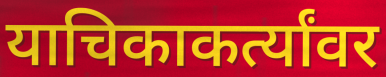
याचिकाकर्त्यांवर